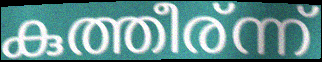
കുത്തീര്ന്ന്